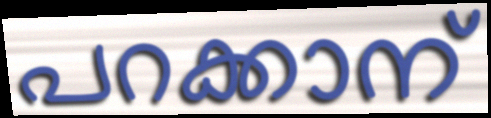
പറക്കാന്